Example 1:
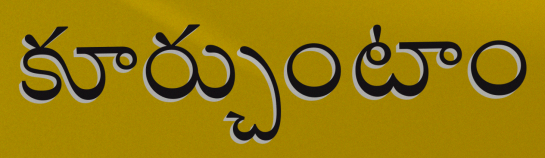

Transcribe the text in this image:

కూర్చుంటాం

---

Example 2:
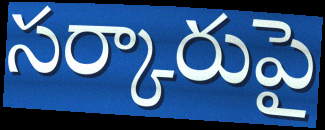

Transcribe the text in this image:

సర్కారుపై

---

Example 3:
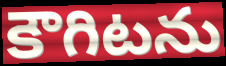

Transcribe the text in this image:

కౌగిటను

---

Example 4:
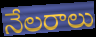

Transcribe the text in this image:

నేలరాలు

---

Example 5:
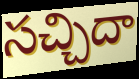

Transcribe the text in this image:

సచ్చిదా